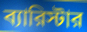
ব্যারিস্টার